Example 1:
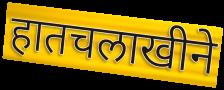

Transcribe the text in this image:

हातचलाखीने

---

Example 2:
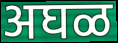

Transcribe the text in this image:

अघळ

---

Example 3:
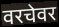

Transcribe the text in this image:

वरचेवर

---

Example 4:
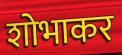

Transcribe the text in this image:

शोभाकर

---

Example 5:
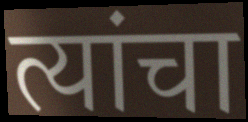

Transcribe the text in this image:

त्यांचा